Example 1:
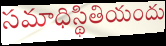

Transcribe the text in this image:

సమాధిస్థితియందు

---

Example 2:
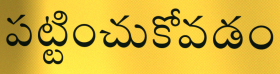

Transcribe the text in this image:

పట్టించుకోవడం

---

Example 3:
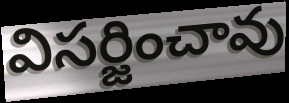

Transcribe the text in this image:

విసర్జించావు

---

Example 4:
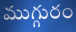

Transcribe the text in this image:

ముగ్గురం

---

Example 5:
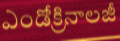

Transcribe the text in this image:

ఎండోక్రినాలజీ